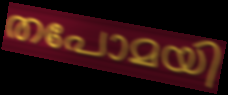
തപോമയി